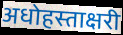
अधोहस्ताक्षरी